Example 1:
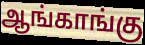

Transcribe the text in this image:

ஆங்காங்கு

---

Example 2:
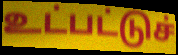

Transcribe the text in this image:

உட்பட்டுச்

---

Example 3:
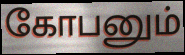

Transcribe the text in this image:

கோபனும்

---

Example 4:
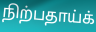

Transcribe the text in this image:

நிற்பதாய்க்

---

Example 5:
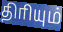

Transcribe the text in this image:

திரியும்